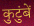
कुटुंबें